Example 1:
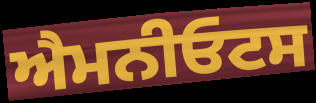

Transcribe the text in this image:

ਐਮਨੀਓਟਸ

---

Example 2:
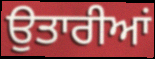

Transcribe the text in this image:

ਉਤਾਰੀਆਂ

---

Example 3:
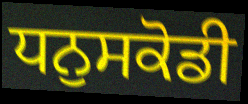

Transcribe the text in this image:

ਧਨੁਸਕੋਡੀ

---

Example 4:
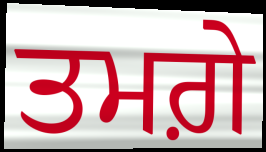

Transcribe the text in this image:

ਤਮਗ਼ੇ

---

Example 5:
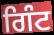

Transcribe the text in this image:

ਗਿੰਟ